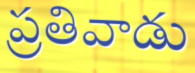
ప్రతివాడు